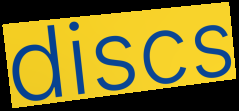
discs